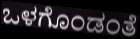
ಒಳಗೊಂಡಂತೆ